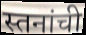
स्तनांची